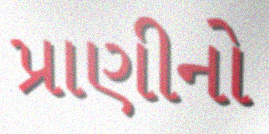
પ્રાણીનો